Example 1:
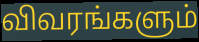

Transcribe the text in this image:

விவரங்களும்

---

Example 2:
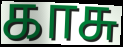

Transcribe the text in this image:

காசு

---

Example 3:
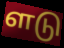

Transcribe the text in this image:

ளடு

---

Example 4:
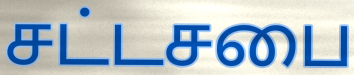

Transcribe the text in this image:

சட்டசபை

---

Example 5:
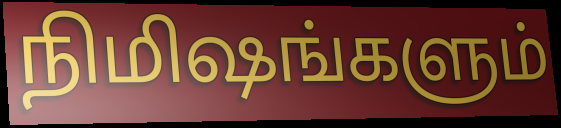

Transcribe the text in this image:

நிமிஷங்களும்